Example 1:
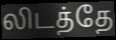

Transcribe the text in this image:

லிடத்தே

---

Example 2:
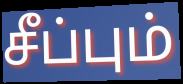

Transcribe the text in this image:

சீப்பும்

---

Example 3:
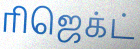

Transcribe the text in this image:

ரிஜெக்ட்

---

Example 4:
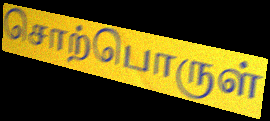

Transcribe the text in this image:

சொற்பொருள்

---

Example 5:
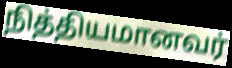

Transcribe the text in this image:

நித்தியமானவர்